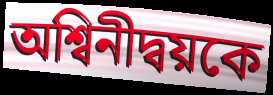
অশ্বিনীদ্বয়কে